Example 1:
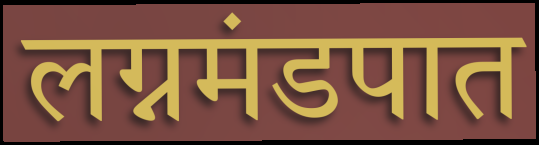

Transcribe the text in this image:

लग्नमंडपात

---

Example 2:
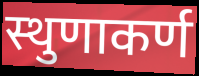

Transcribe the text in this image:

स्थुणाकर्ण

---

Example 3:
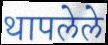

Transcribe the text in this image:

थापलेले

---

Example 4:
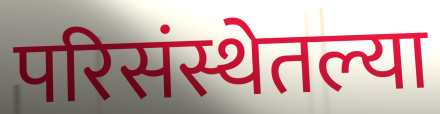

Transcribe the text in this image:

परिसंस्थेतल्या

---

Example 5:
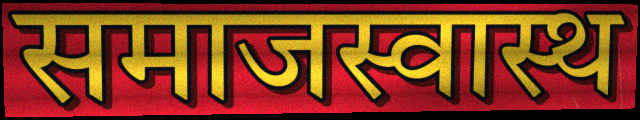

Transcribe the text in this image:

समाजस्वास्थ